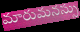
మారుమనస్సు